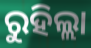
ରୁହିଲ୍ଲା